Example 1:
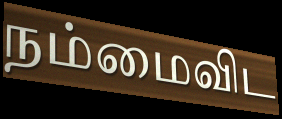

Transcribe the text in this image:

நம்மைவிட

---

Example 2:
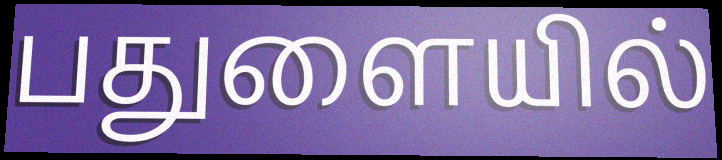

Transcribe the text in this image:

பதுளையில்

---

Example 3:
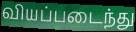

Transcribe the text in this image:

வியப்படைந்து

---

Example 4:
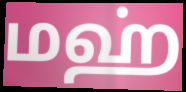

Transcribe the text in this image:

மஹ்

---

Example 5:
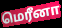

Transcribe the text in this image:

மெரீனா